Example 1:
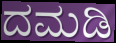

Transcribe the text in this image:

ದಮಡಿ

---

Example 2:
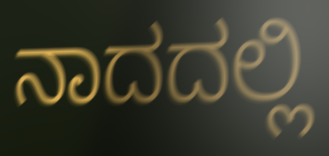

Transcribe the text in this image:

ನಾದದಲ್ಲಿ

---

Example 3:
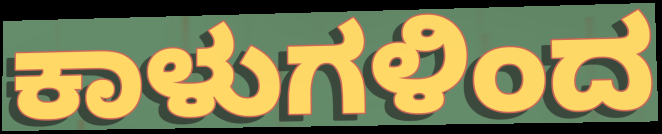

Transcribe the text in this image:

ಕಾಳುಗಳಿಂದ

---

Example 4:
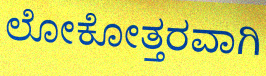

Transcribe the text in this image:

ಲೋಕೋತ್ತರವಾಗಿ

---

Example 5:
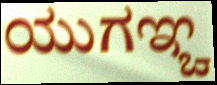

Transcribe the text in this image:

ಯುಗಞ್ಚ